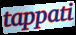
tappati